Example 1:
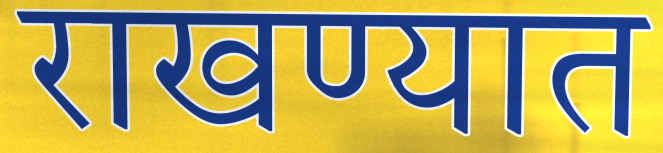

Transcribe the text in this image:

राखण्यात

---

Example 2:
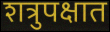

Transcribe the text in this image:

शत्रुपक्षात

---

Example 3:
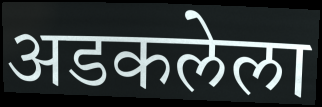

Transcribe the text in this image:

अडकलेला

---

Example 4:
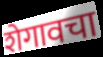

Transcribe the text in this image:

शेगावचा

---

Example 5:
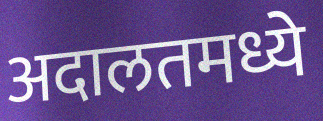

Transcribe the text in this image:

अदालतमध्ये